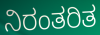
ನಿರಂತರಿತ